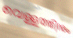
വെള്ളത്തിനും